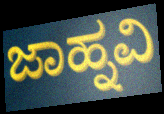
ಜಾಹ್ನವಿ